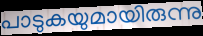
പാടുകയുമായിരുന്നു